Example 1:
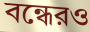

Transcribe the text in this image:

বন্ধেরও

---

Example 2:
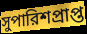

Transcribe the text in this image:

সুপারিশপ্রাপ্ত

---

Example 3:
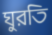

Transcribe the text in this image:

ঘুরতি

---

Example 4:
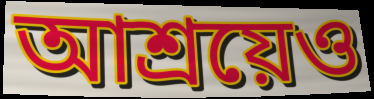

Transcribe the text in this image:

আশ্রয়েও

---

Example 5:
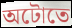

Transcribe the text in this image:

অটোতে